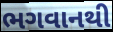
ભગવાનથી